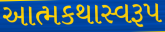
આત્મકથાસ્વરૂપ